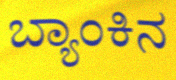
ಬ್ಯಾಂಕಿನ